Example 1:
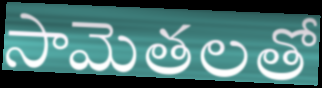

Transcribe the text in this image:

సామెతలతో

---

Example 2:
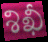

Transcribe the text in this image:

శిఖీ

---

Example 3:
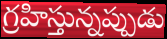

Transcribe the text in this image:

గ్రహిస్తున్నప్పుడు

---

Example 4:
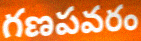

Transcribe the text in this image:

గణపవరం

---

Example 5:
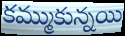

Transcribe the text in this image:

కమ్ముకున్నయి